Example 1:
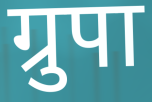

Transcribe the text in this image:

ग्रुपा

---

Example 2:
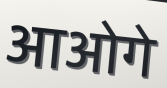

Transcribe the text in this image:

आओगे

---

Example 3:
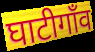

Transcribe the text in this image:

घाटीगाँव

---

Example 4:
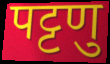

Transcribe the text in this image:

पट्टणु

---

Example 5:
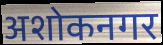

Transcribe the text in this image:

अशोकनगर